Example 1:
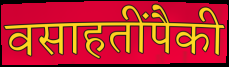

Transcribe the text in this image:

वसाहतींपैकी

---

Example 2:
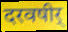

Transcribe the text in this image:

दरवषीर्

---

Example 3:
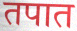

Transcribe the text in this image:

तपात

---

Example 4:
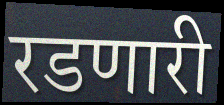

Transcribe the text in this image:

रडणारी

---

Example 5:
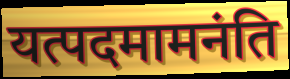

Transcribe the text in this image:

यत्पदमामनंति